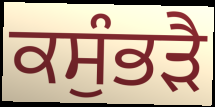
ਕਸੁੰਭੜੈ